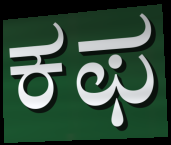
ಕಫ